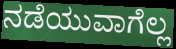
ನಡೆಯುವಾಗೆಲ್ಲ